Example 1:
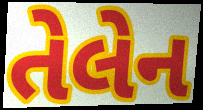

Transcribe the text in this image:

તેલેન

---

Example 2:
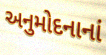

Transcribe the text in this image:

અનુમોદનાનાં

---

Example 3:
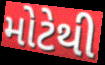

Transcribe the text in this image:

મોટેથી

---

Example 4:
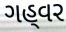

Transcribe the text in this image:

ગહ્‌વર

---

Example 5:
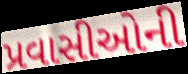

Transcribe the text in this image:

પ્રવાસીઓની